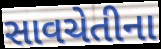
સાવચેતીના